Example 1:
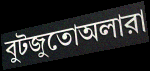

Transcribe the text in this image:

বুটজুতোঅলারা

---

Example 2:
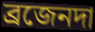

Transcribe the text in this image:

ব্রজেনদা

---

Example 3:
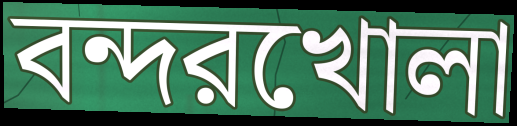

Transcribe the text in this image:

বন্দরখোলা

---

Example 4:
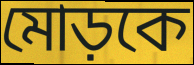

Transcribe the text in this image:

মোড়কে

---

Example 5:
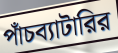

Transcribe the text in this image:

পাঁচব্যাটারির